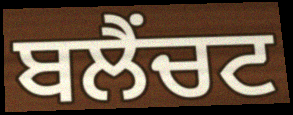
ਬਲੈਂਚਟ